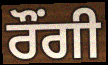
ਰੌਂਗੀ